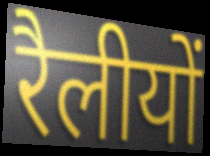
रैलीयों